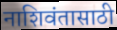
नाशिवंतासाठी